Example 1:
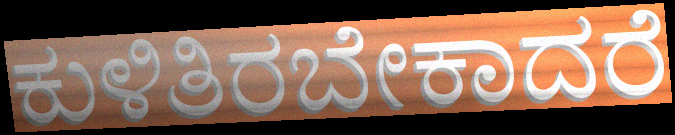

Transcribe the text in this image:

ಕುಳಿತಿರಬೇಕಾದರೆ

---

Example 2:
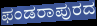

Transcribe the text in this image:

ಫಂಡರಾಪುರದ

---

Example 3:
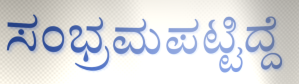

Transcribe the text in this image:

ಸಂಭ್ರಮಪಟ್ಟಿದ್ದೆ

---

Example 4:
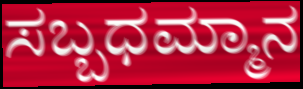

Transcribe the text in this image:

ಸಬ್ಬಧಮ್ಮಾನ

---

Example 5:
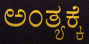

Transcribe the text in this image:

ಅಂತ್ಯಕ್ಕೆ